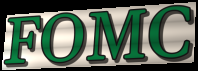
FOMC